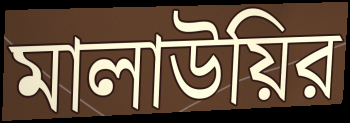
মালাউয়ির